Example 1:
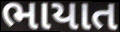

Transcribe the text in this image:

ભાયાત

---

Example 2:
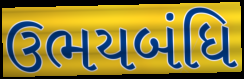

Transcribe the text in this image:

ઉભયબંધિ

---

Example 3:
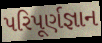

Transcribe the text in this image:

પરિપૂર્ણજ્ઞાન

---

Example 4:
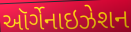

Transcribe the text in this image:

ઑર્ગેનાઇઝેશન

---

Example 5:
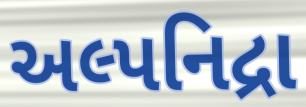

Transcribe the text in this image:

અલ્પનિદ્રા